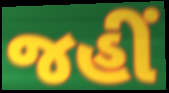
જહીં